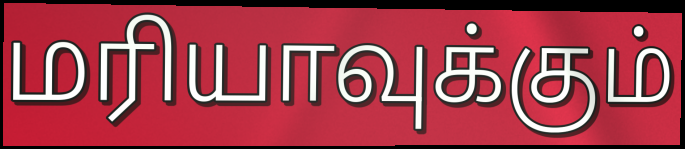
மரியாவுக்கும்